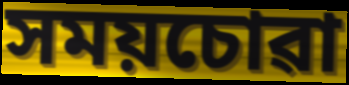
সময়চোৱা